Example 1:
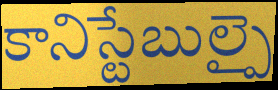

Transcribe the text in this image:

కానిస్టేబుల్పై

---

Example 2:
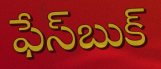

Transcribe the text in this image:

ఫేస్‌బుక్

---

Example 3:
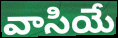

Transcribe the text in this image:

వాసియే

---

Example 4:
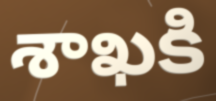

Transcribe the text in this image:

శాఖకి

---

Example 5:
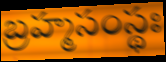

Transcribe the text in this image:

బ్రహ్మసంస్థః